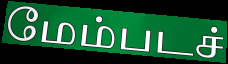
மேம்படச்